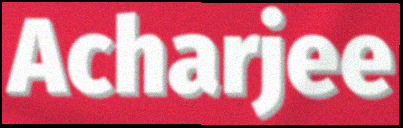
Acharjee